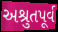
અશ્રુતપૂર્વ